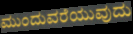
ಮುಂದುವರೆಯುವುದು